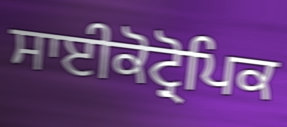
ਸਾਈਕੋਟ੍ਰੋਪਿਕ